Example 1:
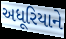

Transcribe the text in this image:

અધૂરિયાને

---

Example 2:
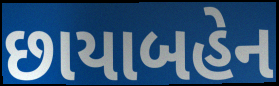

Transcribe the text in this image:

છાયાબહેન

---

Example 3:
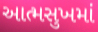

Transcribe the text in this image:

આત્મસુખમાં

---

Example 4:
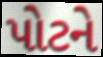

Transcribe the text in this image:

પોટને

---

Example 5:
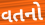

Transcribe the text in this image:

વતનો